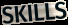
SKILLS